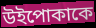
উইপোকাকে